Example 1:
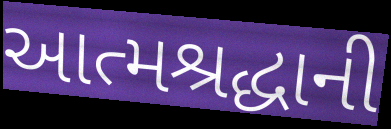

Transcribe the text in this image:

આત્મશ્રદ્ધાની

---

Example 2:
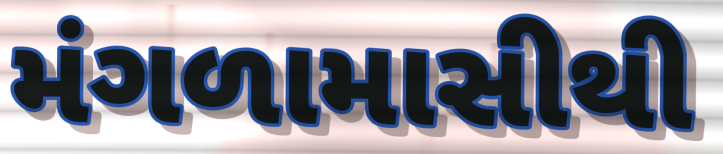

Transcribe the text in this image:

મંગળામાસીથી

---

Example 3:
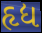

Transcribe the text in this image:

હૃદ્ય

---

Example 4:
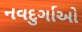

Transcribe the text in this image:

નવદુર્ગાઓ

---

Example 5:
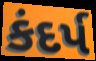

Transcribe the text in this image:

કંદર્પ